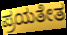
ಪ್ರಯತೇತ